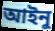
আইনু